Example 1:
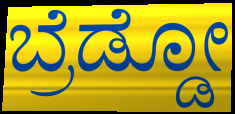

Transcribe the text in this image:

ಬ್ರೆಡ್ಡೋ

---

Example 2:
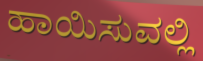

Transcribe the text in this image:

ಹಾಯಿಸುವಲ್ಲಿ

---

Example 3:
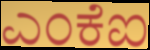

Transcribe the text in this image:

ಎಂಕೆಐ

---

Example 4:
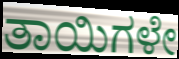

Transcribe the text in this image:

ತಾಯಿಗಳೇ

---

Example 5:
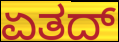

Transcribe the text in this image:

ಏತದ್